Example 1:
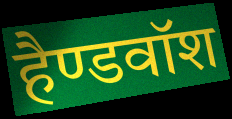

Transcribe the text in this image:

हैण्डवॉश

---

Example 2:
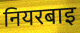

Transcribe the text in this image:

नियरबाइ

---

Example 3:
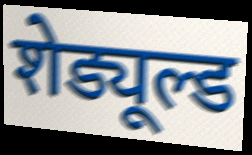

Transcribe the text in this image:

शेड्यूल्ड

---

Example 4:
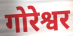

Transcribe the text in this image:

गोरेश्वर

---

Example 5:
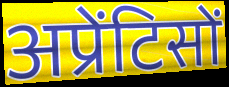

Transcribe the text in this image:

अप्रेंटिसों